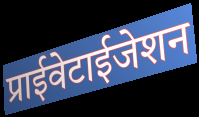
प्राईवेटाईजेशन